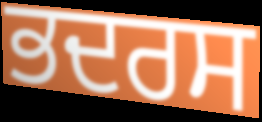
ਭਦਰਸ